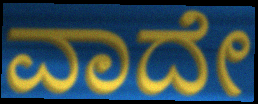
ವಾದೇ